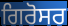
ਗਿਰੋਸਰ